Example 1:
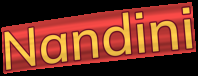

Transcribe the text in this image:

Nandini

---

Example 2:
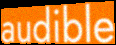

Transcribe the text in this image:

audible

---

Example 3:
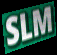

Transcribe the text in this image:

SLM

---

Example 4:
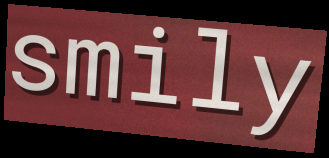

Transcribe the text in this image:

smily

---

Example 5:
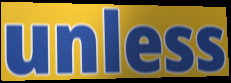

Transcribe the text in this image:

unless